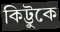
কিট্টুকে